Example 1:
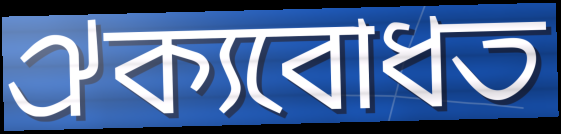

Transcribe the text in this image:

ঐক্যবোধত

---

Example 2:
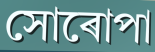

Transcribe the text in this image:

সোৰোপা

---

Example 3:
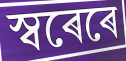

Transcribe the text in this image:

স্বৰেৰে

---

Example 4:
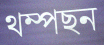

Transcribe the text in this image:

থম্পছন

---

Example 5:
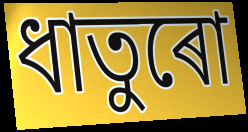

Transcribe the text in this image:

ধাতুৰো